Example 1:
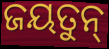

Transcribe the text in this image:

ଜୟତୁନ୍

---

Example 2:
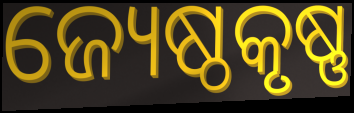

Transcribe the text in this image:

ଜ୍ୟେଷ୍ଠକୃଷ୍ଣ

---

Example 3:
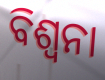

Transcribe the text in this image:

ବିଶ୍ୱନା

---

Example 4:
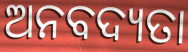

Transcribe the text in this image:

ଅନବଦ୍ୟତା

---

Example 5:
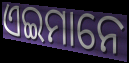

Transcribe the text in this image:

ଏଇମାନେ